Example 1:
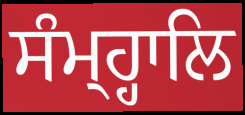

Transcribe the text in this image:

ਸੰਮ੍ਹ੍ਹਾਲਿ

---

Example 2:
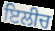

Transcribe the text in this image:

ਇਲੀਚ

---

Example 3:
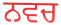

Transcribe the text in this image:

ਨਵਚ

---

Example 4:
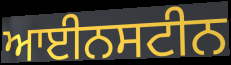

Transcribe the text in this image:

ਆਈਨਸਟੀਨ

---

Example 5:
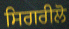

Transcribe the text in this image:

ਸਿਗਰੀਲੋ